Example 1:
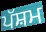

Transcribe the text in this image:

ਪੱਸ਼ਮ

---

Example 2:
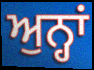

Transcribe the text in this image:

ਅੁਨ੍ਹਾਂ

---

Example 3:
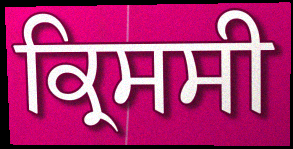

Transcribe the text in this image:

ਕ੍ਰਿਸਸੀ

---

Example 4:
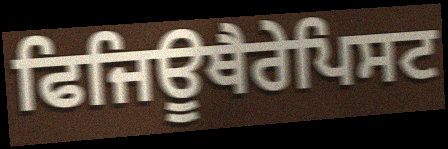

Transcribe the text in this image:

ਫਿਜਿਊਥੈਰੇਪਿਸਟ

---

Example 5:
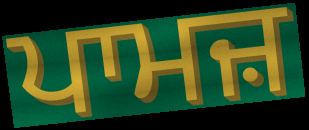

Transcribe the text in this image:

ਪਾਮਜ਼